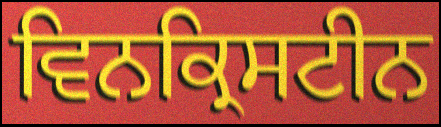
ਵਿਨਕ੍ਰਿਸਟੀਨ